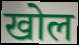
खोल